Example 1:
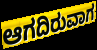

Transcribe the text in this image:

ಆಗದಿರುವಾಗ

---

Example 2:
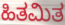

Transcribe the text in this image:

ಹಿತಮಿತ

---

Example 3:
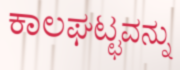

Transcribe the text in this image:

ಕಾಲಘಟ್ಟವನ್ನು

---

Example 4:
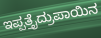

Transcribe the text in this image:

ಇಪ್ಪತ್ತೈದ್ರುಪಾಯಿನ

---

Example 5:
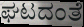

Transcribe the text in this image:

ಘಟದಂತೆ